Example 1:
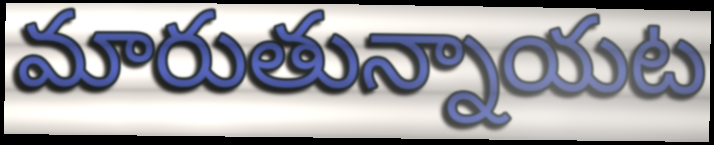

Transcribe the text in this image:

మారుతున్నాయట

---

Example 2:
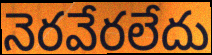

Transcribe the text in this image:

నెరవేరలేదు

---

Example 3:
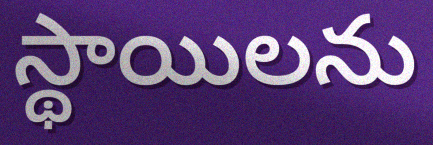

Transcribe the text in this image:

స్థాయిలను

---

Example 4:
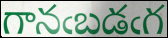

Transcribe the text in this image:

గానఁబడఁగ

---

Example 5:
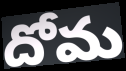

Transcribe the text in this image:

దోమ